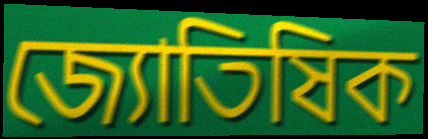
জ্যোতিষিক